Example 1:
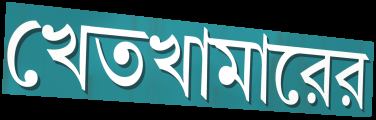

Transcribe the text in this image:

খেতখামারের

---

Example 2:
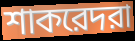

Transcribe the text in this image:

শাকরেদরা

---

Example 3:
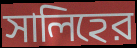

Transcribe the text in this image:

সালিহের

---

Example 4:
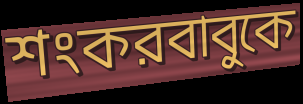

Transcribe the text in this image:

শংকরবাবুকে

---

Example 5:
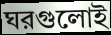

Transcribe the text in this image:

ঘরগুলোই